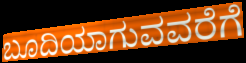
ಬೂದಿಯಾಗುವವರೆಗೆ